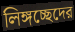
লিঙ্গচ্ছেদের